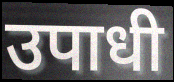
उपाधी